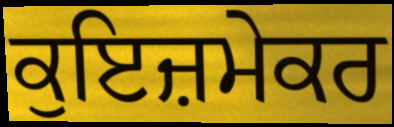
ਕੁਇਜ਼ਮੇਕਰ